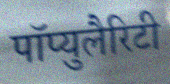
पॉप्युलैरिटी